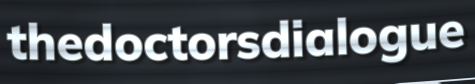
thedoctorsdialogue